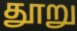
தூறு